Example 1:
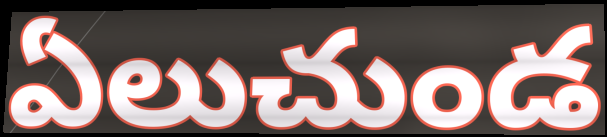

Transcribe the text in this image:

ఏలుచుండ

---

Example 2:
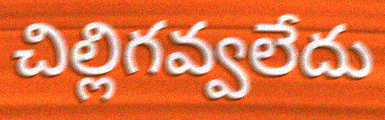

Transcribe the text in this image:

చిల్లిగవ్వలేదు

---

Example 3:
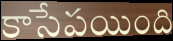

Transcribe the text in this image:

కాసేపయింది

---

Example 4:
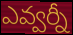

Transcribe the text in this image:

ఎవ్వర్నీ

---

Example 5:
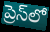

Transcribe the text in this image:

ప్రెస్‌లో